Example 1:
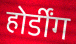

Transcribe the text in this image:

होर्डींग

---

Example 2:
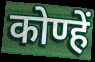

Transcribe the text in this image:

कोण्हें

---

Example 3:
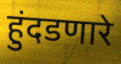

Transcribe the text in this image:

हुंदडणारे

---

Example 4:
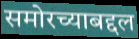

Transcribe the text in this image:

समोरच्याबद्दल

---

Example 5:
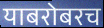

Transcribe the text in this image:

याबरोबरच